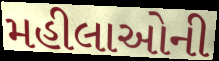
મહીલાઓની